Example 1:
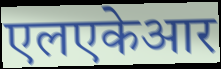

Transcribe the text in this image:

एलएकेआर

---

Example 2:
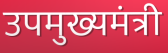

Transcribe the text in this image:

उपमुख्यमंत्री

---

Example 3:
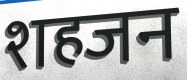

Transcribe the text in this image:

शहजन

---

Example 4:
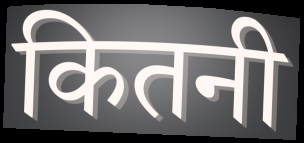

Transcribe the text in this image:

कितनी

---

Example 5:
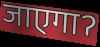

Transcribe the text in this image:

जाएगाॽ